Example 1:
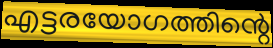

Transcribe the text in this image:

എട്ടരയോഗത്തിന്റെ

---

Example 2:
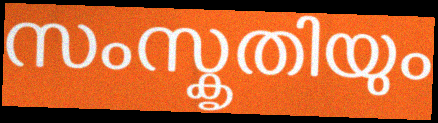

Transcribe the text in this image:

സംസ്കൃതിയും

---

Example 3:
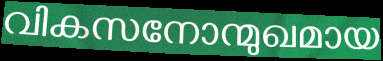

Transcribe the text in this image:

വികസനോന്മുഖമായ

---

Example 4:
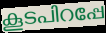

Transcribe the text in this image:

കൂടപിറപ്പേ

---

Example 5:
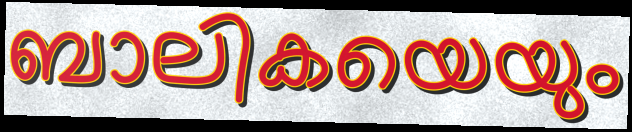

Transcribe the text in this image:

ബാലികയെയും